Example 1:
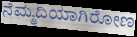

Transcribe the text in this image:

ನೆಮ್ಮದಿಯಾಗಿರೋಣ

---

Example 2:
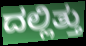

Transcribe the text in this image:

ದಲ್ಲಿತ್ತು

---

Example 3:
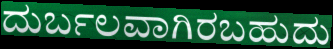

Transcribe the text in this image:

ದುರ್ಬಲವಾಗಿರಬಹುದು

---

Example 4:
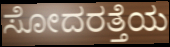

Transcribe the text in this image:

ಸೋದರತ್ತೆಯ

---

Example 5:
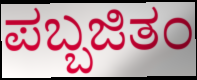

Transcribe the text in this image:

ಪಬ್ಬಜಿತಂ